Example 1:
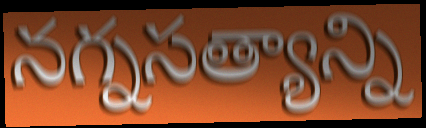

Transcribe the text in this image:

నగ్నసత్యాన్ని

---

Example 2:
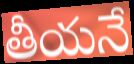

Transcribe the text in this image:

తీయనే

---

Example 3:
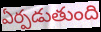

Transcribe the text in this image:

ఏర్పడుతుంది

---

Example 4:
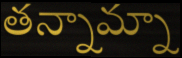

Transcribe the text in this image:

తన్నామ్నా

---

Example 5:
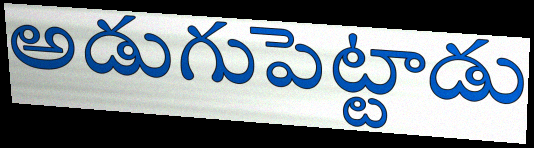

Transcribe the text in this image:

అడుగుపెట్టాడు